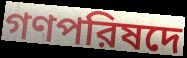
গণপরিষদে